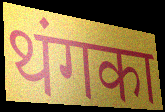
थंगका